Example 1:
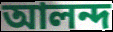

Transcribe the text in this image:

আলন্দ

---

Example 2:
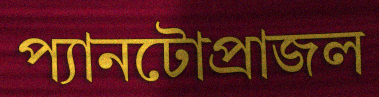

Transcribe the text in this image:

প্যানটোপ্রাজল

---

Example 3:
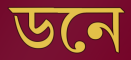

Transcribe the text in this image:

ডনে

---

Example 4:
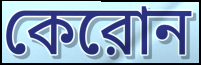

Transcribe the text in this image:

কেরোন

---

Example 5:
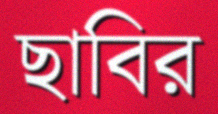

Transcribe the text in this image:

ছাবির